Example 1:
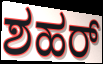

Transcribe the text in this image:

ಶಹರ್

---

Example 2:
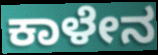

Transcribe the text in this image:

ಕಾಳೇನ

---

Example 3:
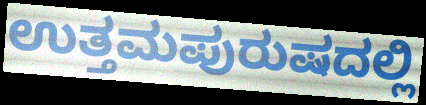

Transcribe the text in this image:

ಉತ್ತಮಪುರುಷದಲ್ಲಿ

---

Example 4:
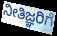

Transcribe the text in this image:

ನೀತಿಜ್ಞರಿಗೆ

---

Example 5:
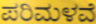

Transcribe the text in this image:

ಪರಿಮಳವೆ